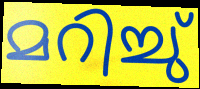
മറിച്ചു്